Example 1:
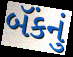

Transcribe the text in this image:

બૅંકનું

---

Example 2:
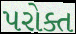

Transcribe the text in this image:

પરોક્ત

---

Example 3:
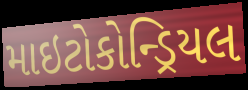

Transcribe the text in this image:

માઇટોકોન્ડ્રિયલ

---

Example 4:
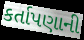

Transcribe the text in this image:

કર્તાપણાની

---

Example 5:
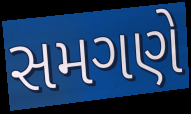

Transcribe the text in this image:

સમગણે